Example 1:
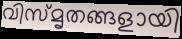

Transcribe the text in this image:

വിസ്മൃതങ്ങളായി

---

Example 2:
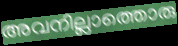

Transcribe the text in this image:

അവനില്ലാത്തൊരു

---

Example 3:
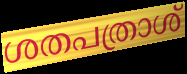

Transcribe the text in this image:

ശതപത്രാശ്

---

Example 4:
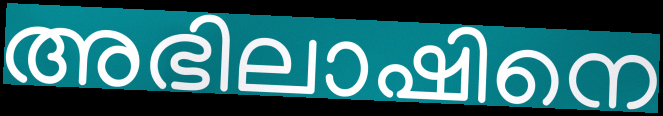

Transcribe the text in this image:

അഭിലാഷിനെ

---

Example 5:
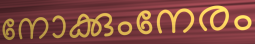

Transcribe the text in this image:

നോക്കുംനേരം